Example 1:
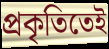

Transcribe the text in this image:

প্রকৃতিতেই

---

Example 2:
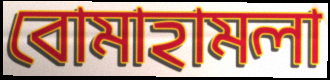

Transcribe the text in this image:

বোমাহামলা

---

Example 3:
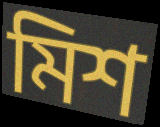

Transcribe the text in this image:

মিশ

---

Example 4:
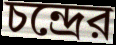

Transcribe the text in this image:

চন্দ্রের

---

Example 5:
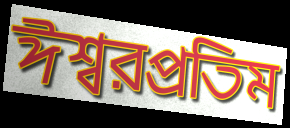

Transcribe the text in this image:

ঈশ্বরপ্রতিম